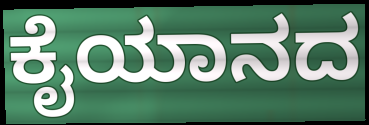
ಕೈಯಾನದ